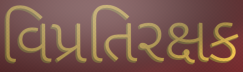
વિપ્રતિરક્ષક